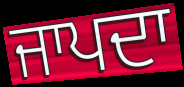
ਜਾਪਦਾ